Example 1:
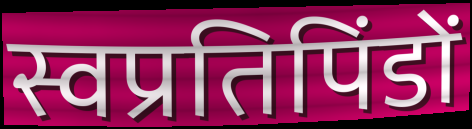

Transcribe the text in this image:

स्वप्रतिपिंडों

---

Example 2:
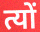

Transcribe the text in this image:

त्यों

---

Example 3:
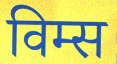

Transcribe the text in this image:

विम्स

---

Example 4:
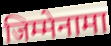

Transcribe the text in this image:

जिम्मेनामा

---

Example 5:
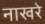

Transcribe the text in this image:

नाखरे